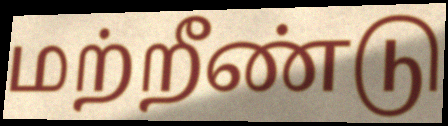
மற்றீண்டு